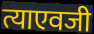
त्याएवजी